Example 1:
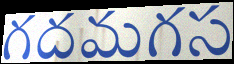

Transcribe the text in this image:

గదమగస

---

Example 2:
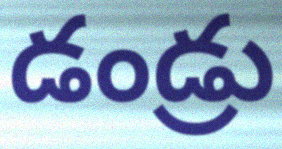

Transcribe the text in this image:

డండ్రు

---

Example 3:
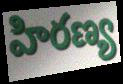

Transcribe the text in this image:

హిరణ్య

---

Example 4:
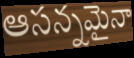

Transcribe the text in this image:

ఆసన్నమైనా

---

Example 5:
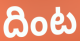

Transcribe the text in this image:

దింట